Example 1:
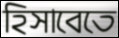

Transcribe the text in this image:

হিসাবেতে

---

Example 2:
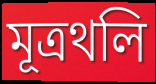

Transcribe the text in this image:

মূত্রথলি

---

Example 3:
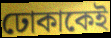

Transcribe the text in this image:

ঢোকাকেই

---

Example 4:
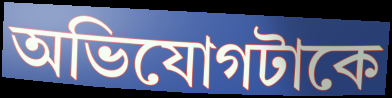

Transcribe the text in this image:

অভিযোগটাকে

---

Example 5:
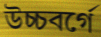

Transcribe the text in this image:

উচ্চবর্গে